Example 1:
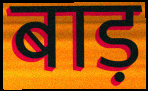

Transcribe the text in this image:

बाड़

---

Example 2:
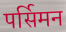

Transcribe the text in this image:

पर्सिमन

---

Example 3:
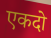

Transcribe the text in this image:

एकदो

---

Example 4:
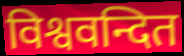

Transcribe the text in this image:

विश्ववन्दित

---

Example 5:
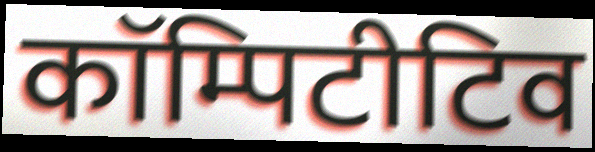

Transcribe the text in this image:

कॉम्पिटीटिव